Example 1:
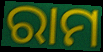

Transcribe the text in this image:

ରାମ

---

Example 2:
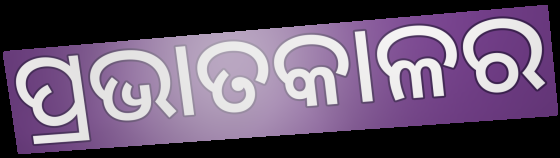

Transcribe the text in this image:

ପ୍ରଭାତକାଳର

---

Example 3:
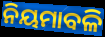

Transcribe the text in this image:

ନିୟମାବଳି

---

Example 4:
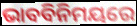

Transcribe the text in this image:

ଭାବବିନିମୟରେ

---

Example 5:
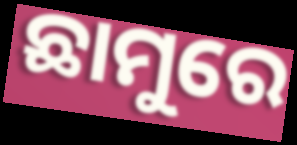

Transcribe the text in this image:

ଛାମୁରେ